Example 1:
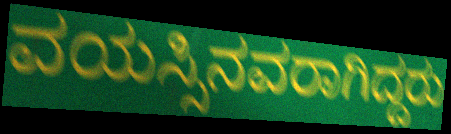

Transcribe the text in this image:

ವಯಸ್ಸಿನವರಾಗಿದ್ದರು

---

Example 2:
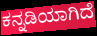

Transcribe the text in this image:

ಕನ್ನಡಿಯಾಗಿದೆ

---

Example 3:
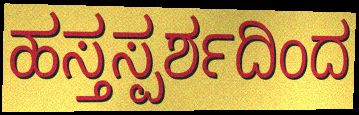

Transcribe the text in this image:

ಹಸ್ತಸ್ಪರ್ಶದಿಂದ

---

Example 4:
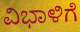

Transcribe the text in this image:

ವಿಭಾಳಿಗೆ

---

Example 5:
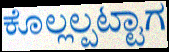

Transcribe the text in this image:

ಕೊಲ್ಲಲ್ಪಟ್ಟಾಗ